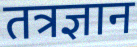
तत्रज्ञान